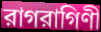
রাগরাগিণী